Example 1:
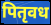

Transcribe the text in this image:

पितृवध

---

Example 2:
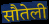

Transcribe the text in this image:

सौतेली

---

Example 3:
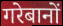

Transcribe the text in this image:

गरेबानों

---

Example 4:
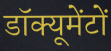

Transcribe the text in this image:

डॉक्यूमेंटों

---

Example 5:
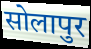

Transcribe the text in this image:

सोलापुर